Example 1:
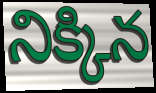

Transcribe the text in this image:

నిక్కిన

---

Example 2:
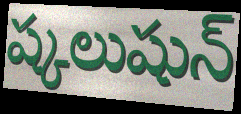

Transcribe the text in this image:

ష్కలుషున్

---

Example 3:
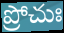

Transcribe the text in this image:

ప్రోచుః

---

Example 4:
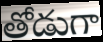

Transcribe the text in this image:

తోడుగా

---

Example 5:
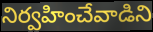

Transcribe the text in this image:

నిర్వహించేవాడిని